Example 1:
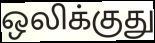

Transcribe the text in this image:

ஒலிக்குது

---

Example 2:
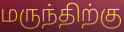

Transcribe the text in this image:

மருந்திற்கு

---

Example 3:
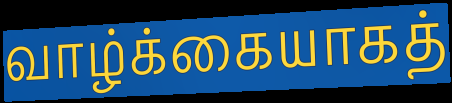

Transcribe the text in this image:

வாழ்க்கையாகத்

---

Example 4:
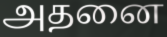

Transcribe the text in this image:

அதனை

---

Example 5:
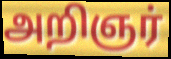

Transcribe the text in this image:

அறிஞர்